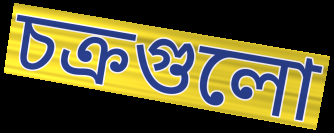
চক্রগুলো